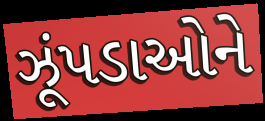
ઝૂંપડાઓને